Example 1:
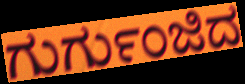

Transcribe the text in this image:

ಗುರ್ಗುಂಜಿದ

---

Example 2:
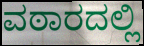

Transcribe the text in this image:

ವಠಾರದಲ್ಲಿ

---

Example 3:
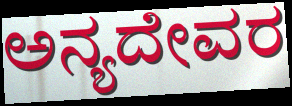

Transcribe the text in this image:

ಅನ್ಯದೇವರ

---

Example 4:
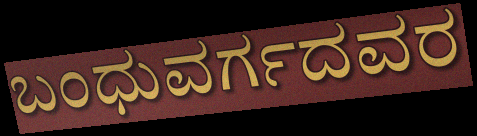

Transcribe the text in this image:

ಬಂಧುವರ್ಗದವರ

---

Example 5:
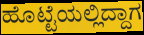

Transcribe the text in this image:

ಹೊಟ್ಟೆಯಲ್ಲಿದ್ದಾಗ